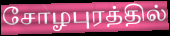
சோழபுரத்தில்